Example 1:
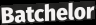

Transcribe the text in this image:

Batchelor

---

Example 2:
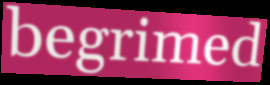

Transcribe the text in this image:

begrimed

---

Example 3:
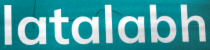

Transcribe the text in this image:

latalabh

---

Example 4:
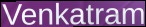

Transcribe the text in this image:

Venkatram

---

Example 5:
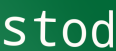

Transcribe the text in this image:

stod